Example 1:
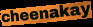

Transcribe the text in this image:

cheenakay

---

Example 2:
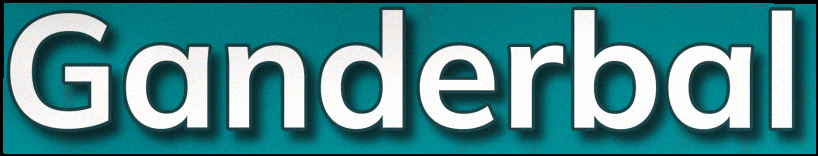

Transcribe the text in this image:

Ganderbal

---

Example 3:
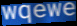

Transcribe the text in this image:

wqewe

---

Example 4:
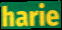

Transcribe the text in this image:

harie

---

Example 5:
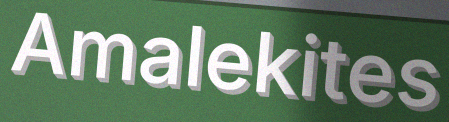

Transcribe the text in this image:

Amalekites